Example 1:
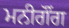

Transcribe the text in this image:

ਮਨੀਗੌਂਗ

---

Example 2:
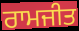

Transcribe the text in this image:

ਰਾਮਜੀਤ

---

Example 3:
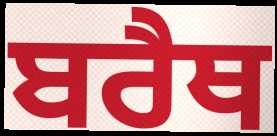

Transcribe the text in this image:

ਬਰੈਥ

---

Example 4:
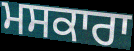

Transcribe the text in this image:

ਮਸਕਾਰਾ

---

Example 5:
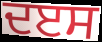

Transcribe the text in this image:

ਦੲਸ